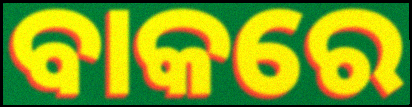
ବାକରେ